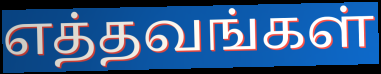
எத்தவங்கள்